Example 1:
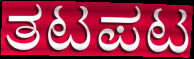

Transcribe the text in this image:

ತಟಪಟ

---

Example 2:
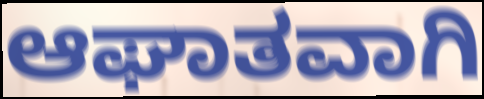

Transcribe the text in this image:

ಆಘಾತವಾಗಿ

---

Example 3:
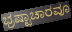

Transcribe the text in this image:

ಭ್ರಷ್ಟಾಚಾರವೂ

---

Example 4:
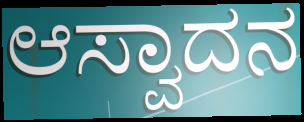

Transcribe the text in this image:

ಆಸ್ವಾದನ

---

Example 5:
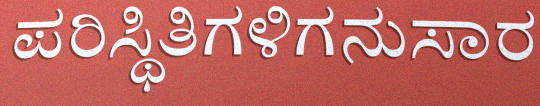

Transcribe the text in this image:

ಪರಿಸ್ಥಿತಿಗಳಿಗನುಸಾರ